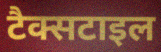
टैक्सटाइल